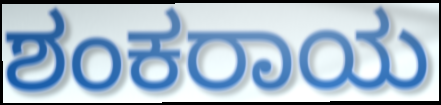
ಶಂಕರಾಯ